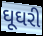
ઘૂઘરી